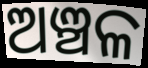
ଅଞ୍ଚଳ